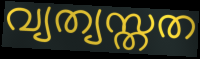
വ്യത്യസ്തത